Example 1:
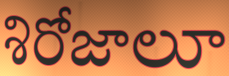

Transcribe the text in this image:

శిరోజాలూ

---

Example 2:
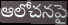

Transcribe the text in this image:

ఆలోచనపై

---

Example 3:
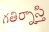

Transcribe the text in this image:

గతిర్నాస్తి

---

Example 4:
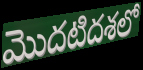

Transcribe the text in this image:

మొదటిదశలో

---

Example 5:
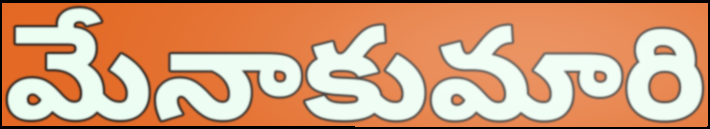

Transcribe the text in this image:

మేనాకుమారి